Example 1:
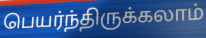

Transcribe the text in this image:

பெயர்ந்திருக்கலாம்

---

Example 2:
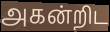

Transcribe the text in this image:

அகன்றிட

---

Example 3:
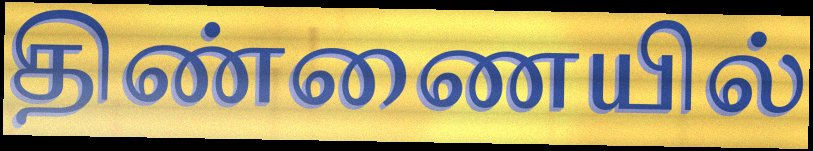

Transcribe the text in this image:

திண்ணையில்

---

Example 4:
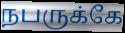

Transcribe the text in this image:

நபருக்கே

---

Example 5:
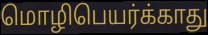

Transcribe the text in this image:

மொழிபெயர்க்காது